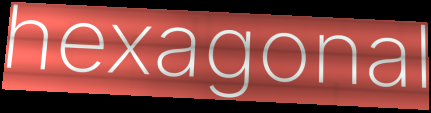
hexagonal